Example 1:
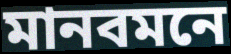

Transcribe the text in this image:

মানবমনে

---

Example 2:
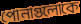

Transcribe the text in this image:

পোনাগুলোকে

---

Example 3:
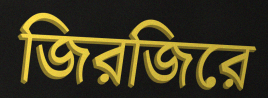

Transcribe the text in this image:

জিরজিরে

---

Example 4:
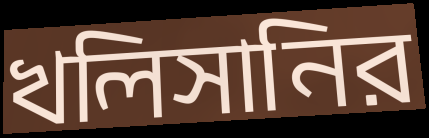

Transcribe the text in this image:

খলিসানির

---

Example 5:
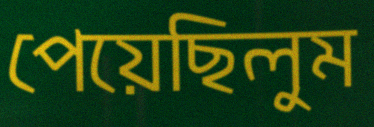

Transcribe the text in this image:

পেয়েছিলুম